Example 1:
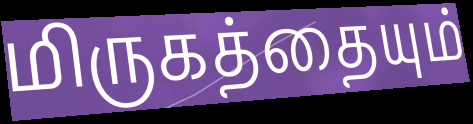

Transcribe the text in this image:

மிருகத்தையும்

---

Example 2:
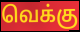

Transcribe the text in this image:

வெக்கு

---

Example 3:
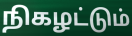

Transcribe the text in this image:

நிகழட்டும்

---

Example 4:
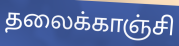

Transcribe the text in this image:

தலைக்காஞ்சி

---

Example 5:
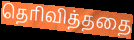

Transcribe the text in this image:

தெரிவித்ததை